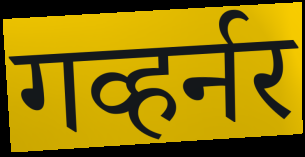
गव्हर्नर